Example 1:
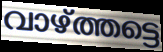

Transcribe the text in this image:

വാഴ്ത്തട്ടെ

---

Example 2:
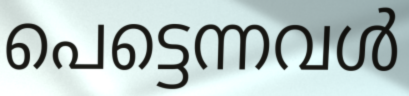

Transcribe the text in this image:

പെട്ടെന്നവൾ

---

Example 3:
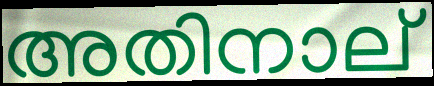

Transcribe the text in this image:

അതിനാല്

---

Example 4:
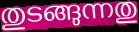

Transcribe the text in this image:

തുടങ്ങുന്നതു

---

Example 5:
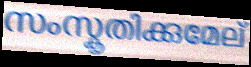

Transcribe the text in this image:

സംസ്കൃതിക്കുമേല്